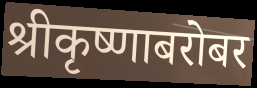
श्रीकृष्णाबरोबर